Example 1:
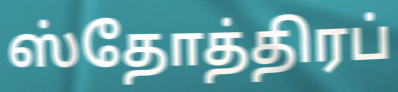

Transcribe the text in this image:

ஸ்தோத்திரப்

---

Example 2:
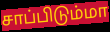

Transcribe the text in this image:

சாப்பிடும்மா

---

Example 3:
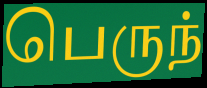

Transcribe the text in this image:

பெருந்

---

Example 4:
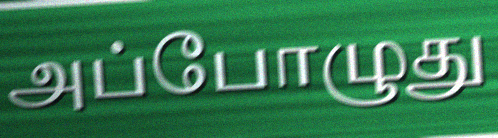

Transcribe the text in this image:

அப்போழுது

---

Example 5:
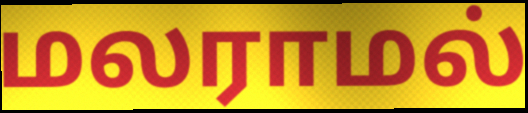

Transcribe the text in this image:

மலராமல்